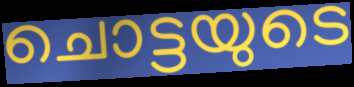
ചൊട്ടയുടെ